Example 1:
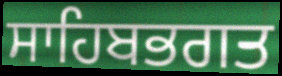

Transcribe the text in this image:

ਸਾਹਿਬਭਗਤ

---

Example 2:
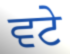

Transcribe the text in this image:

ਵਟੇ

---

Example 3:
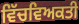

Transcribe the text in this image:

ਵਿੱਚਵਿਅਕਤੀ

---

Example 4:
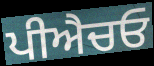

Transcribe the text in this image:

ਪੀਐਚਓ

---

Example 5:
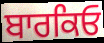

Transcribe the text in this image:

ਬਾਰਕਿਓ